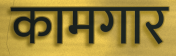
कामगार